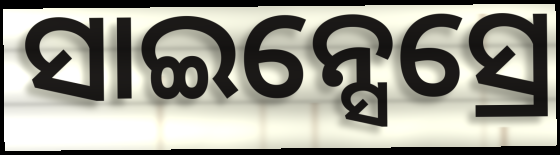
ସାଇନ୍ସେସ୍ରେ